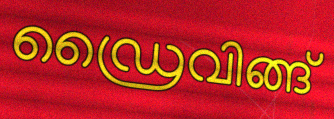
ഡ്രൈവിങ്ങ്